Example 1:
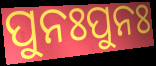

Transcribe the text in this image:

ପୁନଃପୁନଃ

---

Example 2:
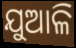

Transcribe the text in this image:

ଯୁଆଳି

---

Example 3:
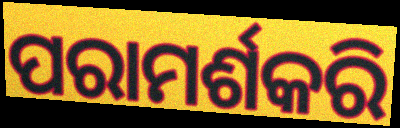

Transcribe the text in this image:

ପରାମର୍ଶକରି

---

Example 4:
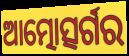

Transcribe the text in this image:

ଆତ୍ମୋତ୍ସର୍ଗର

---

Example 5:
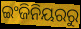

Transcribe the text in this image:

ଇଂଜିନିୟରରୁ